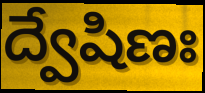
ద్వేషిణః